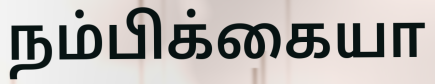
நம்பிக்கையா